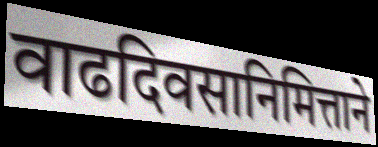
वाढदिवसानिमित्ताने